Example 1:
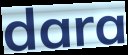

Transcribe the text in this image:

dara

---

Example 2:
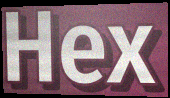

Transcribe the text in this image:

Hex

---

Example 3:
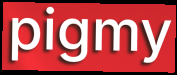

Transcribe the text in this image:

pigmy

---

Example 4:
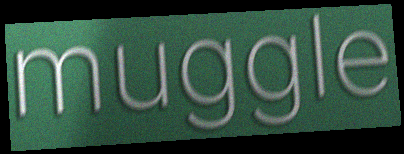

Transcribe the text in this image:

muggle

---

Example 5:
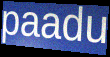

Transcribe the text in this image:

paadu